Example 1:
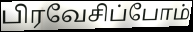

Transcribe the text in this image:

பிரவேசிப்போம்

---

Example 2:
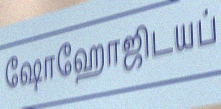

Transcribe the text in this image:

ஷோஹோஜிடயப்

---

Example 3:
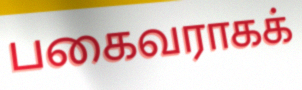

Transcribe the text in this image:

பகைவராகக்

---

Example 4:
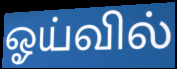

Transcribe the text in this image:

ஓய்வில்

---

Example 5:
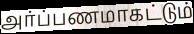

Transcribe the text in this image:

அர்ப்பணமாகட்டும்